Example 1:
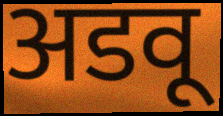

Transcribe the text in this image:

अडवू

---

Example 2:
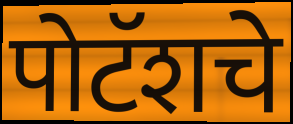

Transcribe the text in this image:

पोटॅशचे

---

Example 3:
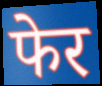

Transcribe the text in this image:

फेर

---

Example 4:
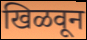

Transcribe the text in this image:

खिळवून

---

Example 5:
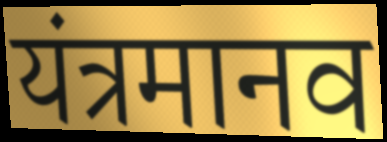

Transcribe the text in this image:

यंत्रमानव